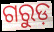
ଗରୁଡ଼